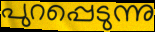
പുറപ്പെടുന്നു